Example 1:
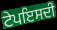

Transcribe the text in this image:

ਟੇਪਇਸਦੀ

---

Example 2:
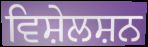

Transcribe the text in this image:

ਵਿਸ਼ੇਲਸ਼ਨ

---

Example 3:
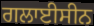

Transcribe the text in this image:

ਗਲਾਈਸੀਨ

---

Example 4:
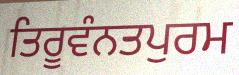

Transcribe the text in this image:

ਤਿਰੂਵੰਨਤਪੁਰਮ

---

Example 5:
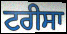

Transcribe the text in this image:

ਟਰੀਸਾ